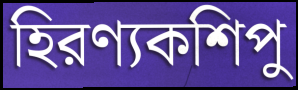
হিরণ্যকশিপু